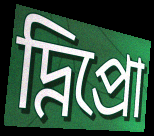
দ্নিপ্রো